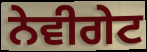
ਨੇਵੀਗੇਟ